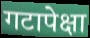
गटापेक्षा